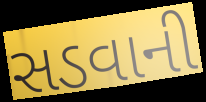
સડવાની